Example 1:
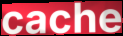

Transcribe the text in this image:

cache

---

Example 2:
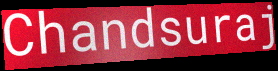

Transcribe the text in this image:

Chandsuraj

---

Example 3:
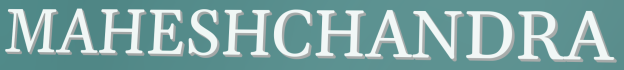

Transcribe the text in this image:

MAHESHCHANDRA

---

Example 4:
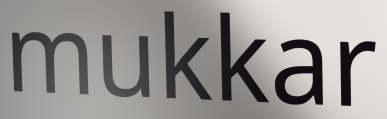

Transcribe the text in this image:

mukkar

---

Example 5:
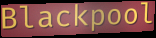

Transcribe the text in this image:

Blackpool